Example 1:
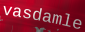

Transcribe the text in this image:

vasdamle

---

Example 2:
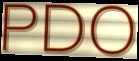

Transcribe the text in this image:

PDO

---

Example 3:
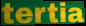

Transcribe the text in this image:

tertia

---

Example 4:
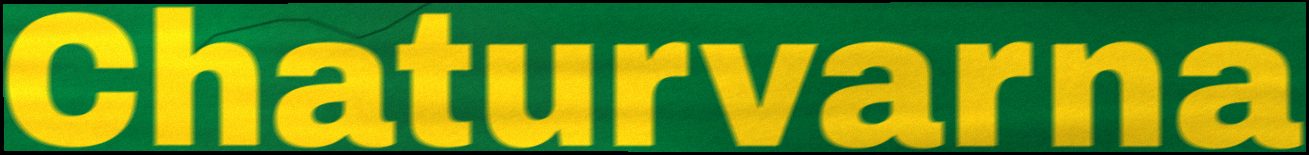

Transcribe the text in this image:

Chaturvarna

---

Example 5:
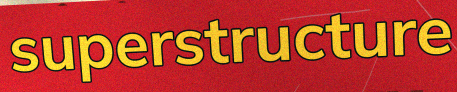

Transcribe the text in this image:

superstructure